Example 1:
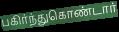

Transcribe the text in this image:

பகிர்ந்துகொண்டார்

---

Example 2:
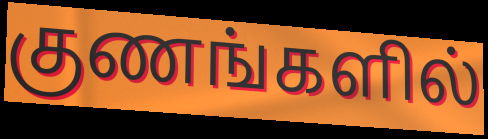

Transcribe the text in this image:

குணங்களில்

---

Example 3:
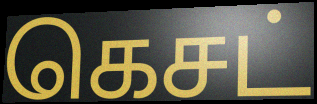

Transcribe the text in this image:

கெசட்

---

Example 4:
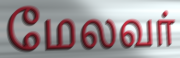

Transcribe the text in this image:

மேலவர்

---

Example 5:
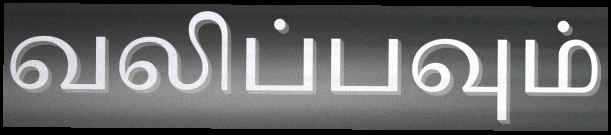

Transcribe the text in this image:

வலிப்பவும்